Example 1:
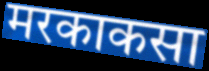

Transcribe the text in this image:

मरकाकसा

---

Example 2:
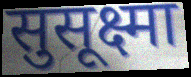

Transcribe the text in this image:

सुसूक्ष्मा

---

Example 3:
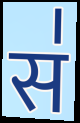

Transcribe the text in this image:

स॑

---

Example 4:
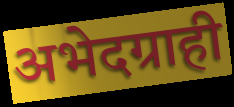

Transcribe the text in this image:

अभेदग्राही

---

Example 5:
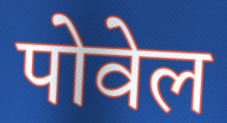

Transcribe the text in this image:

पोवेल